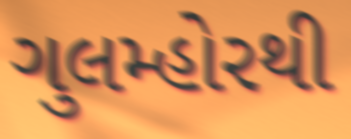
ગુલમ્હોરથી